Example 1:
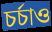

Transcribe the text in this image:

চৰ্চাও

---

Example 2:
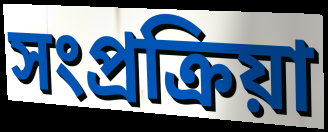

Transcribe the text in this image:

সংপ্ৰক্ৰিয়া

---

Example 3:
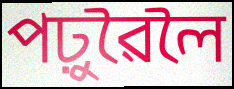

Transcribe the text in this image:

পঢ়ুৱৈলৈ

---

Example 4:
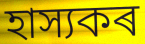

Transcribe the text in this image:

হাস্যকৰ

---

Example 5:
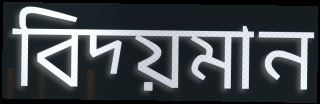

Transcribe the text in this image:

বিদ্য়মান